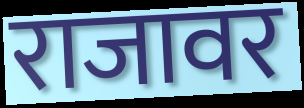
राजावर